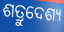
ଶତ୍ରୁଦେଶ୍ୟ